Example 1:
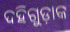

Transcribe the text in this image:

ଦହିଗୁଡ଼ାକ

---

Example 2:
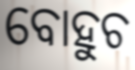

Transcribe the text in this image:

ବୋହୁଚ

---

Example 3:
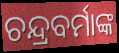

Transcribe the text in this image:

ଚନ୍ଦ୍ରବର୍ମାଙ୍କ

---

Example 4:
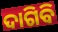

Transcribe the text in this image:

ଦାଗିବି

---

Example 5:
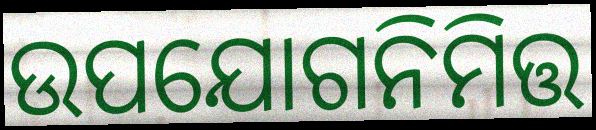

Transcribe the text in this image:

ଉପଯୋଗନିମିତ୍ତ